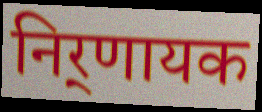
निर्णायक